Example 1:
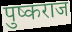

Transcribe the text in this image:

पुष्कराज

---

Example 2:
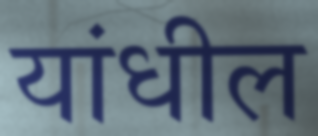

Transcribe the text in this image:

यांधील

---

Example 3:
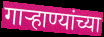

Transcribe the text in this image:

गाऱ्हाण्यांच्या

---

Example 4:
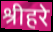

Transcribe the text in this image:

श्रीहरे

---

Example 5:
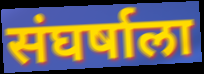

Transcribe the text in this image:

संघर्षाला